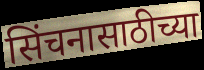
सिंचनासाठीच्या